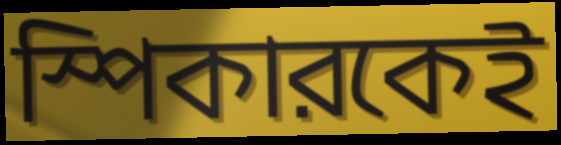
স্পিকারকেই